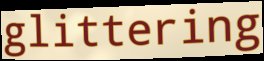
glittering